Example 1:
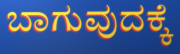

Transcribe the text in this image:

ಬಾಗುವುದಕ್ಕೆ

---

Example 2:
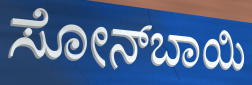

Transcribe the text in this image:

ಸೋನ್‍ಬಾಯಿ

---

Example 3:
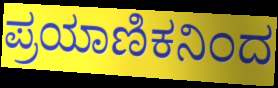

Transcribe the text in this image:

ಪ್ರಯಾಣಿಕನಿಂದ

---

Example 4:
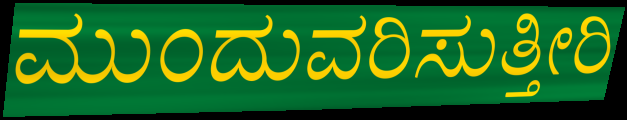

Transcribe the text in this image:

ಮುಂದುವರಿಸುತ್ತೀರಿ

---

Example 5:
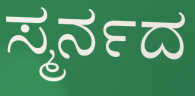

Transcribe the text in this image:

ಸ್ಮರ್ನದ